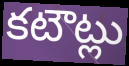
కటౌట్లు